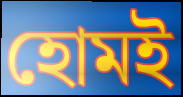
হোমই